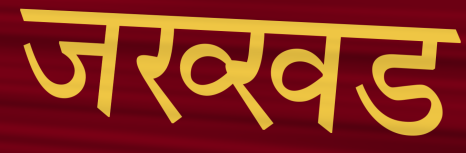
जख्खड